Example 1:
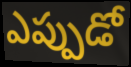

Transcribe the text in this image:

ఎప్పుడో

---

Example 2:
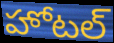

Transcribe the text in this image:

హోటల్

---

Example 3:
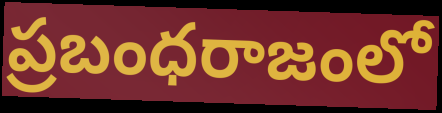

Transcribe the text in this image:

ప్రబంధరాజంలో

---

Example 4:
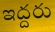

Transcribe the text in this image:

ఇద్దరు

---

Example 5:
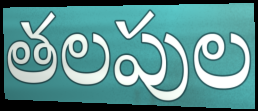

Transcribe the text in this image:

తలపుల